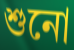
শুনো